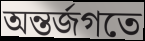
অন্তর্জগতে